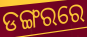
ଡଙ୍ଗରରେ